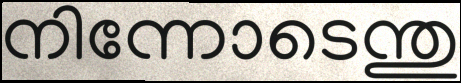
നിന്നോടെന്തു